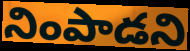
నింపాడని